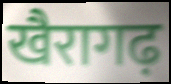
खैरागढ़